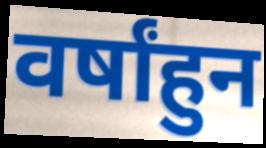
वर्षांहुन